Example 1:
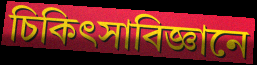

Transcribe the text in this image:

চিকিৎসাবিজ্ঞানে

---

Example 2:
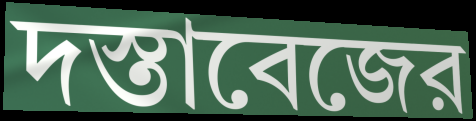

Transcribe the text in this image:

দস্তাবেজের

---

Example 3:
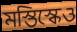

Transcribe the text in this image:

মস্তিস্কেও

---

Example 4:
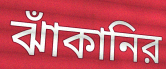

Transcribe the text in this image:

ঝাঁকানির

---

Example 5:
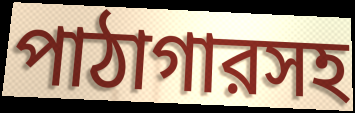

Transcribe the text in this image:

পাঠাগারসহ